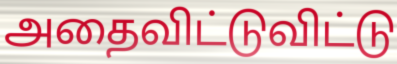
அதைவிட்டுவிட்டு